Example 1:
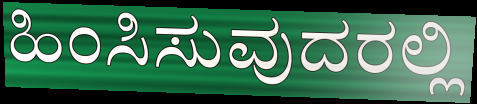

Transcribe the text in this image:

ಹಿಂಸಿಸುವುದರಲ್ಲಿ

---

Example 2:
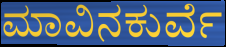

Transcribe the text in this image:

ಮಾವಿನಕುರ್ವೆ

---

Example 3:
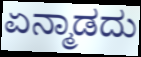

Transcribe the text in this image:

ಏನ್ಮಾಡದು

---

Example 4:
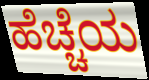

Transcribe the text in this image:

ಹೆಚ್ಚೆಯ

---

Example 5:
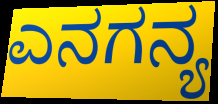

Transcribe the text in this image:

ಎನಗನ್ಯ